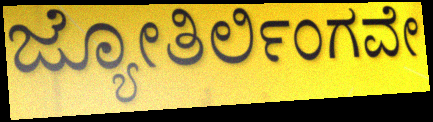
ಜ್ಯೋತಿರ್ಲಿಂಗವೇ